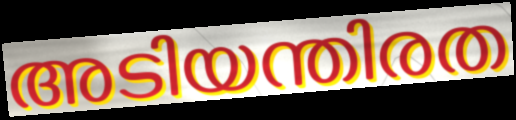
അടിയന്തിരത